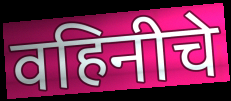
वहिनीचे